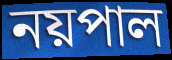
নয়পাল